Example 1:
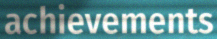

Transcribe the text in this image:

achievements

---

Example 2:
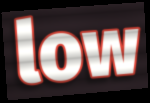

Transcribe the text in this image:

low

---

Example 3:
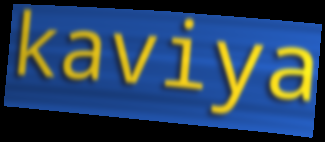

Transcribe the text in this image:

kaviya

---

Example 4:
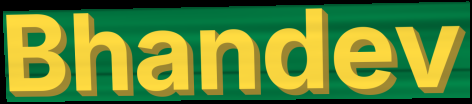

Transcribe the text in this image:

Bhandev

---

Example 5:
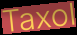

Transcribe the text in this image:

Taxol